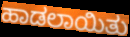
ಹಾಡಲಾಯಿತು